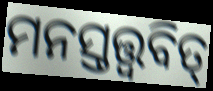
ମନସ୍ତତ୍ତ୍ଵବିତ୍